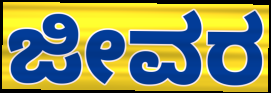
ಜೀವರ